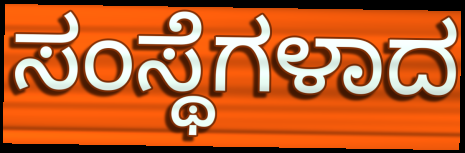
ಸಂಸ್ಥೆಗಳಾದ